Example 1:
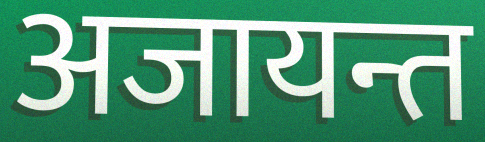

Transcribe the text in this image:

अजायन्त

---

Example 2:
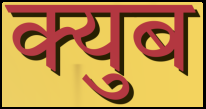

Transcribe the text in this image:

क्युब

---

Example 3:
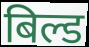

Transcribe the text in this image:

बिल्ड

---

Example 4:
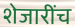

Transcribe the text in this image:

शेजारींच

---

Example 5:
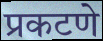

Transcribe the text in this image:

प्रकटणे